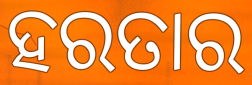
ହରତାର